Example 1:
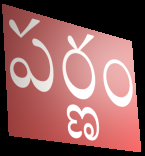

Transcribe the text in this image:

పర్ణం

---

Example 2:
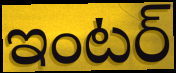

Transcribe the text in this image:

ఇంటర్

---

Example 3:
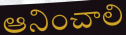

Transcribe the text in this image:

ఆనించాలి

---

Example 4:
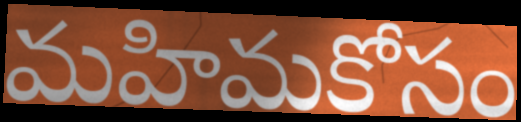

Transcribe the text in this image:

మహిమకోసం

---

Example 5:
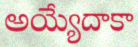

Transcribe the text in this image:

అయ్యేదాకా